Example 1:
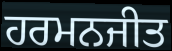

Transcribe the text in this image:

ਹਰਮਨਜੀਤ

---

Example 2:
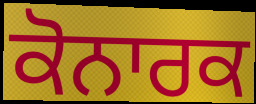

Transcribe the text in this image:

ਕੋਨਾਰਕ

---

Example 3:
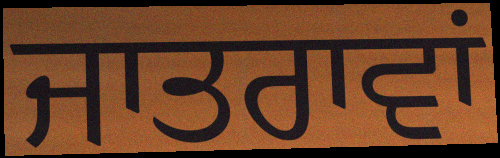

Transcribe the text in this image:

ਜਾਤਰਾਵਾਂ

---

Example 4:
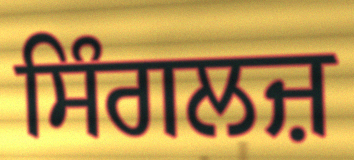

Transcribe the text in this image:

ਸਿੰਗਲਜ਼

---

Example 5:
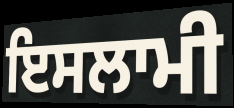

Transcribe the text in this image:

ਇਸਲਾਮੀ